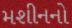
મશીનનો